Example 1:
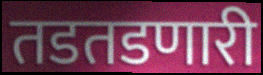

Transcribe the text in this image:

तडतडणारी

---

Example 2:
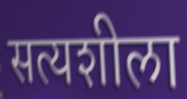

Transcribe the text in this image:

सत्यशीला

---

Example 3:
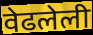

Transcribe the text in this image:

वेढलेली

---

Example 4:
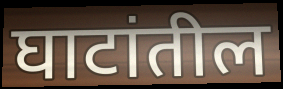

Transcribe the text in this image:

घाटांतील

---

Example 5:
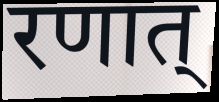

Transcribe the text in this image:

रणात्